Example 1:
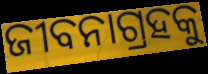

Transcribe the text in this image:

ଜୀବନାଗ୍ରହକୁ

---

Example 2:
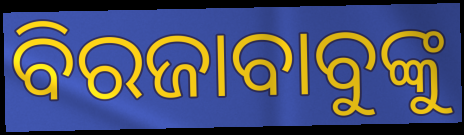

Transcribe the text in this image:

ବିରଜାବାବୁଙ୍କୁ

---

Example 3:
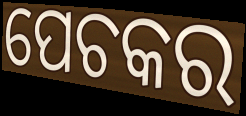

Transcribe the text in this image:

ପେଚକର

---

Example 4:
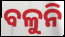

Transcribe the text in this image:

ବଳୁନି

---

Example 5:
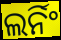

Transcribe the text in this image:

ଲର୍ନିଂ